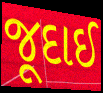
જૂદાઈ